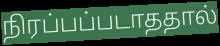
நிரப்பப்படாததால்